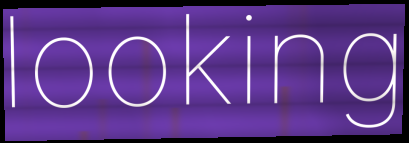
looking